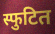
स्फुटित